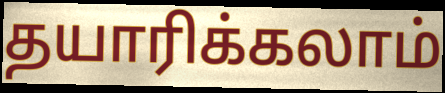
தயாரிக்கலாம்